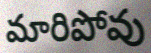
మారిపోవు